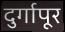
दुर्गापूर